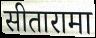
सीतारामा